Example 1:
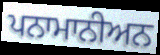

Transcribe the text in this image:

ਪਨਾਮਾਨੀਅਨ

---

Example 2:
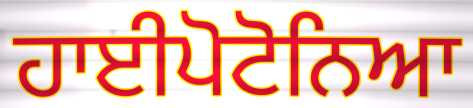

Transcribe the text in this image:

ਹਾਈਪੋਟੋਨਿਆ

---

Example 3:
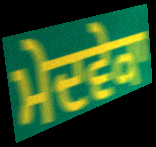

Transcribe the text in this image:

ਮੇਦਵੇਕਾ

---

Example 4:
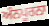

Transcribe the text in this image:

ਅੰਨਪੂਰਨਾ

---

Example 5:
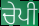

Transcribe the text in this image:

ਚੇਪੀ